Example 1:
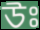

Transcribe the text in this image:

উঃ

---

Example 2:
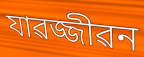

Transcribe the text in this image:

যাৱজ্জীৱন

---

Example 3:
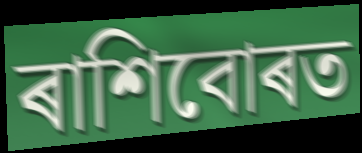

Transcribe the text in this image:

ৰাশিবোৰত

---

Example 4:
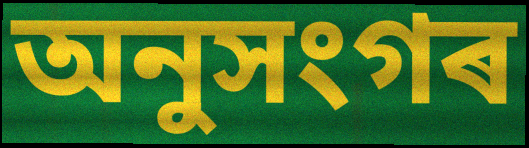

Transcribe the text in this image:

অনুসংগৰ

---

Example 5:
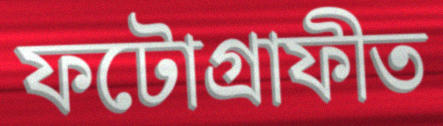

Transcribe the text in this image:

ফটোগ্ৰাফীত